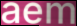
aem